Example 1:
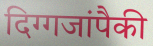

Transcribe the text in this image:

दिग्गजांपैकी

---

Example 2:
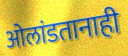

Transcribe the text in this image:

ओलांडतानाही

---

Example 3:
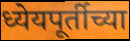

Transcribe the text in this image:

ध्येयपूर्तीच्या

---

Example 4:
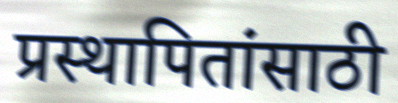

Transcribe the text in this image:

प्रस्थापितांसाठी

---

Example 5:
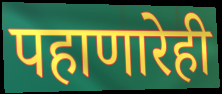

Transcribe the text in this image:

पहाणारेही